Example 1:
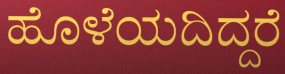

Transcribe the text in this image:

ಹೊಳೆಯದಿದ್ದರೆ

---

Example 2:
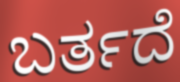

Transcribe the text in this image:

ಬರ್ತದೆ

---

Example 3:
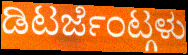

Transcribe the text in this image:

ಡಿಟರ್ಜೆಂಟ್ಗಳು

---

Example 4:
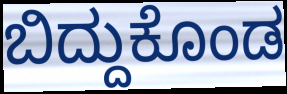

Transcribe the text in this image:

ಬಿದ್ದುಕೊಂಡ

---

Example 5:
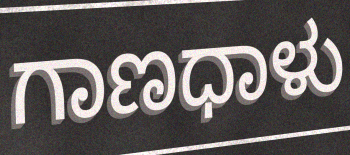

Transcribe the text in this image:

ಗಾಣಧಾಳು